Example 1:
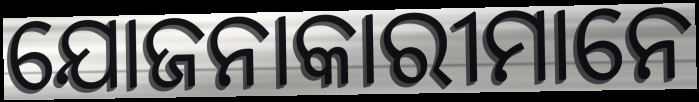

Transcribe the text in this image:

ଯୋଜନାକାରୀମାନେ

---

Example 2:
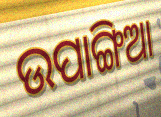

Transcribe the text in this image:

ଉପାଙ୍ଗିଆ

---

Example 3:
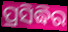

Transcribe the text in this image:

ପ୍ରସିଦ୍ଧିର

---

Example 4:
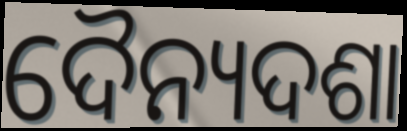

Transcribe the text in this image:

ଦୈନ୍ୟଦଶା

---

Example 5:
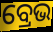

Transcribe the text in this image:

ବ୍ରେଭ